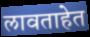
लावताहेत